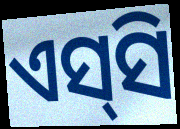
ଏସ୍‍ସି